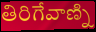
తిరిగేవాణ్ని